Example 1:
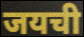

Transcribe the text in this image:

जयची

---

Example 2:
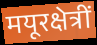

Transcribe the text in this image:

मयूरक्षेत्रीं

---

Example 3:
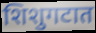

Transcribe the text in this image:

शिशुगटात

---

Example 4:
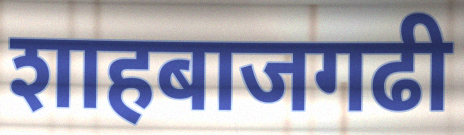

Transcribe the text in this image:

शाहबाजगढी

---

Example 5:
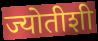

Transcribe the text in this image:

ज्योतीशी